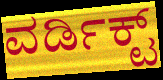
ವರ್ಡಿಕ್ಟ್